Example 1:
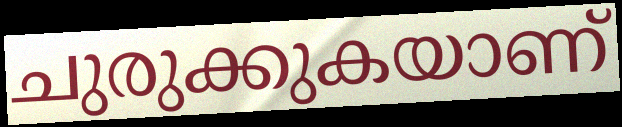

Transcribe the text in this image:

ചുരുക്കുകയാണ്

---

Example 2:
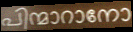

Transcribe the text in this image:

പിന്മാറാനോ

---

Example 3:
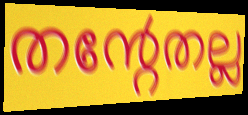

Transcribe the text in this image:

തന്റേതല്ല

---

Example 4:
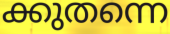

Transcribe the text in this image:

ക്കുതന്നെ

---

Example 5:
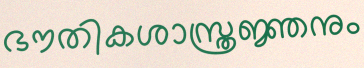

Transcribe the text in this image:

ഭൗതികശാസ്ത്രജ്ഞനും